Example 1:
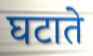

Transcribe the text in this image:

घटाते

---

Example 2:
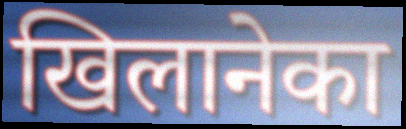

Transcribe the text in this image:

खिलानेका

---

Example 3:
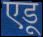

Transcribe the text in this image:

एडू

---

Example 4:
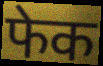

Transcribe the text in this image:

फेक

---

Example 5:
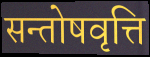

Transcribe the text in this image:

सन्तोषवृत्ति